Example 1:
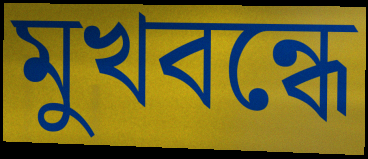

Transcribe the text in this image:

মুখবন্ধে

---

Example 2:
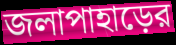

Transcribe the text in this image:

জলাপাহাড়ের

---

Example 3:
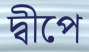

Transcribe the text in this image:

দ্বীপে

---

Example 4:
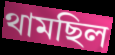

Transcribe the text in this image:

থামছিল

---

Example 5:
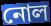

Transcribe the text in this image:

নোল